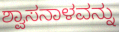
ಶ್ವಾಸನಾಳವನ್ನು